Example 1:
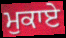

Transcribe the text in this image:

ਮੁਕਾਏ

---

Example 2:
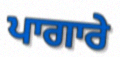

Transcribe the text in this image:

ਪਾਗਾਰੇ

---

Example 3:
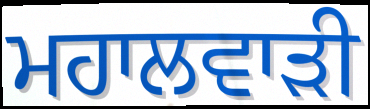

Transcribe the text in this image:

ਮਹਾਲਵਾੜੀ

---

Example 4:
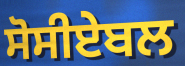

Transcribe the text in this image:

ਸੋਸੀਏਬਲ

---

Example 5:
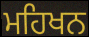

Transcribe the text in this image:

ਮਹਿਖਨ